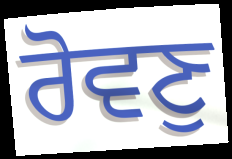
ਰੋਵਣੁ